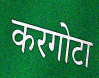
करगोटा